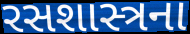
રસશાસ્ત્રના